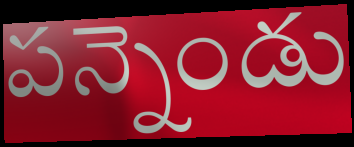
పన్నెండు